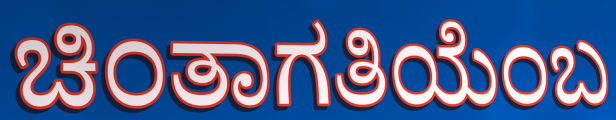
ಚಿಂತಾಗತಿಯೆಂಬ